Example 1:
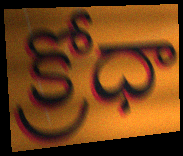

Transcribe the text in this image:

క్రోధా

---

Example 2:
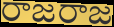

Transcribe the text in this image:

రాజరాజ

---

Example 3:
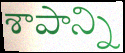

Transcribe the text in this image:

శాపాన్ని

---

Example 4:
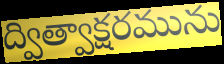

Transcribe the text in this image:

ద్విత్వాక్షరమును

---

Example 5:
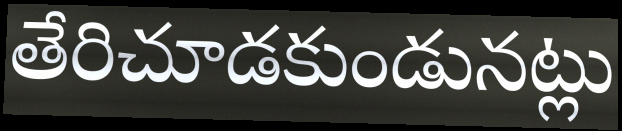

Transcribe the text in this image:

తేరిచూడకుండునట్లు